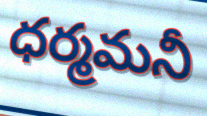
ధర్మమనీ